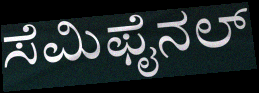
ಸೆಮಿಫೈನಲ್